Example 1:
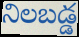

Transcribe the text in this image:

నిలబడ్డ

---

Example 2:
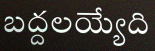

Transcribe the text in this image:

బద్దలయ్యేది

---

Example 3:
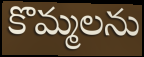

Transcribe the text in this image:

కొమ్మలను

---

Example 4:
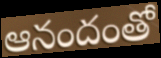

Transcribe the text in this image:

ఆనందంతో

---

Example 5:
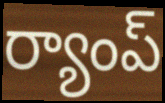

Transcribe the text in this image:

ర్యాంప్